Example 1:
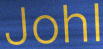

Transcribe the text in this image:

Johl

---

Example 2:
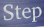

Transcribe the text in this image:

Step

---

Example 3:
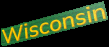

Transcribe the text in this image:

Wisconsin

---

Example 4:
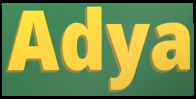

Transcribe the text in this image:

Adya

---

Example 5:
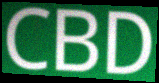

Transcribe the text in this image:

CBD